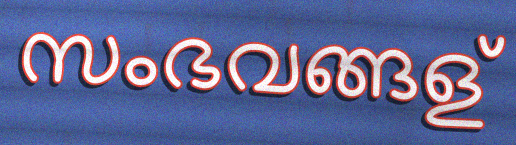
സംഭവങ്ങള്